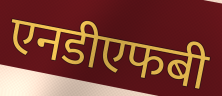
एनडीएफबी